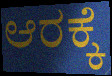
ಆರಕ್ಕೆ